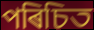
পৰিচিত